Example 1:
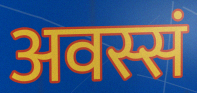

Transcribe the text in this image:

अवस्सं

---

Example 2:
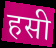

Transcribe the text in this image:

हसी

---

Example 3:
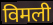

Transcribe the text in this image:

विमली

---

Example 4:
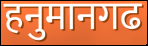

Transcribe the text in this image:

हनुमानगढ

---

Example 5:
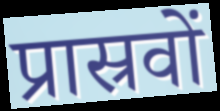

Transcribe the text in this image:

प्रास्रवों